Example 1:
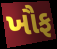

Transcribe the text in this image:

ખૌફ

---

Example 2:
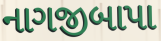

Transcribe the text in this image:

નાગજીબાપા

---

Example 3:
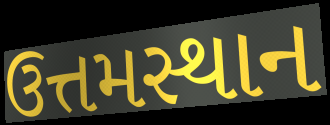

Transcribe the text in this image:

ઉત્તમસ્થાન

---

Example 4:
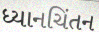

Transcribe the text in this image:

ધ્યાનચિંતન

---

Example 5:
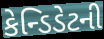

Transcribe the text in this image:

કેન્ડિડેટની